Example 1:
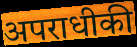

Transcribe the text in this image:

अपराधीकी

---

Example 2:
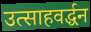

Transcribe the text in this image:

उत्साहवर्द्धन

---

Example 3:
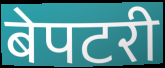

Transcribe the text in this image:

बेपटरी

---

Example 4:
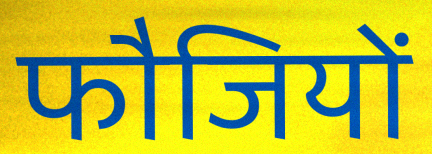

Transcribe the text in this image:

फौजियों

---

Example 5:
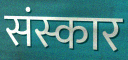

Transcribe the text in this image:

संस्‍कार